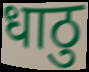
धाठु